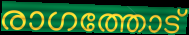
രാഗത്തോട്